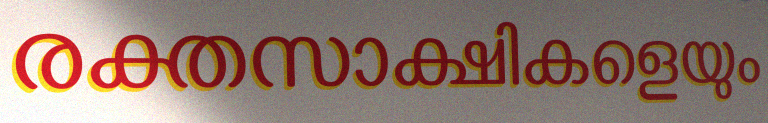
രക്തസാക്ഷികളെയും